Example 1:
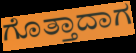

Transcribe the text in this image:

ಗೊತ್ತಾದಾಗ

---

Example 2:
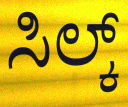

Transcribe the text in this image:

ಸಿಲ್ಕ್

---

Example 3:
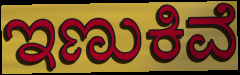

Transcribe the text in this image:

ಇಣುಕಿವೆ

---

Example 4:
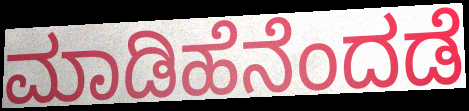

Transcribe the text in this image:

ಮಾಡಿಹೆನೆಂದಡೆ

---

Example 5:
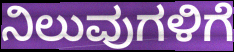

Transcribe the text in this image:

ನಿಲುವುಗಳಿಗೆ